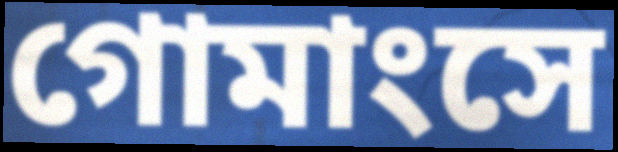
গোমাংসে